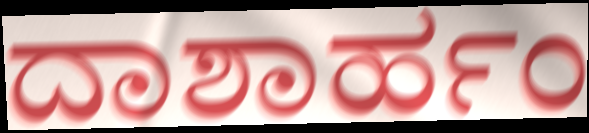
ದಾಶಾರ್ಹಂ